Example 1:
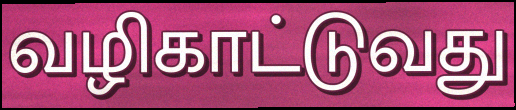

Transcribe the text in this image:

வழிகாட்டுவது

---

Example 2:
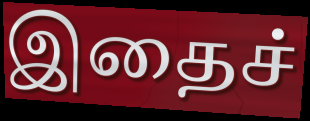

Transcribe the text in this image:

இதைச்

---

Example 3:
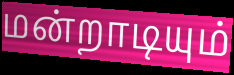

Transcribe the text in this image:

மன்றாடியும்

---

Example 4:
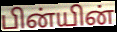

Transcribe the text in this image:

பின்யின்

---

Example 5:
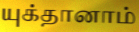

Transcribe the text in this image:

யுக்தானாம்